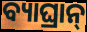
ବ୍ୟାଘ୍ରାନ୍